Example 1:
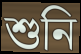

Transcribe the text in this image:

শুনি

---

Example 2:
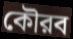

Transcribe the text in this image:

কৌরব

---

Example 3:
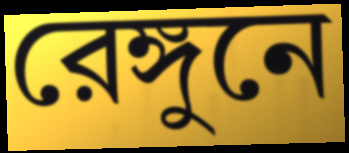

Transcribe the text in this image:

রেঙ্গুনে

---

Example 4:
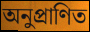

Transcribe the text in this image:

অনুপ্রাণিত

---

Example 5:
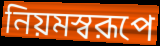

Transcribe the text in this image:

নিয়মস্বরূপে